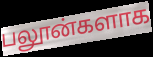
பலூன்களாக